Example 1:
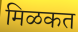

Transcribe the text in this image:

मिळकत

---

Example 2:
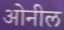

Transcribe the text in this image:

ओनील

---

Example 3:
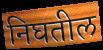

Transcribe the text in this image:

निघतील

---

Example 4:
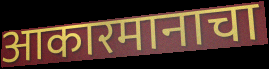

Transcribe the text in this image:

आकारमानाचा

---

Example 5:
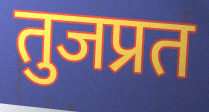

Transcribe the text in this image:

तुजप्रत